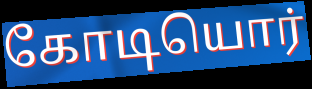
கோடியொர்